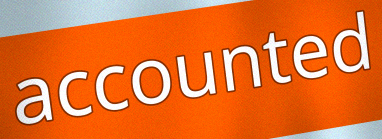
accounted